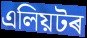
এলিয়টৰ